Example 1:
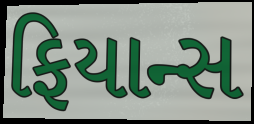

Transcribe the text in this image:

ફિયાન્સ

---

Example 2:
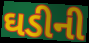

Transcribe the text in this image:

ઘડીની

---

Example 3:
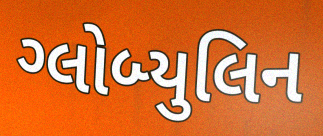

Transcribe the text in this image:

ગ્લોબ્યુલિન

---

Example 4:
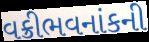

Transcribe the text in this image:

વક્રીભવનાંકની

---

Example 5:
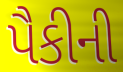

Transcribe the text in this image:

પૈકીની